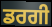
ਡਰਗੀ